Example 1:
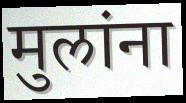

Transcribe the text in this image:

मुलांना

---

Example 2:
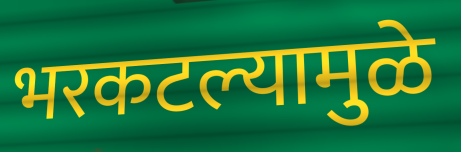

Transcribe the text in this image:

भरकटल्यामुळे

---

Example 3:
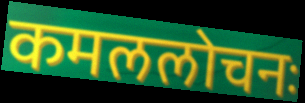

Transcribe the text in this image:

कमललोचनः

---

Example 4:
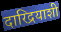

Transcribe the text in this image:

दारिद्रयाशी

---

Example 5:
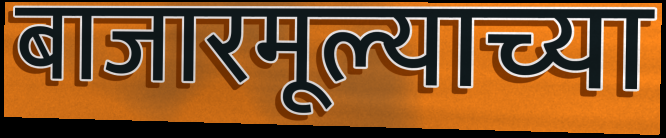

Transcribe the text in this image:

बाजारमूल्याच्या